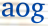
aog